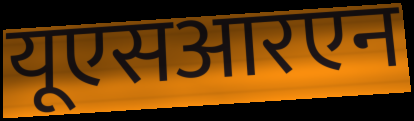
यूएसआरएन